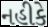
નહીકે